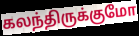
கலந்திருக்குமோ